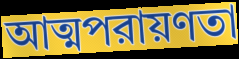
আত্মপরায়ণতা